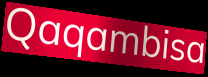
Qaqambisa